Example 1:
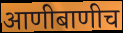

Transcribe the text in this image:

आणीबाणीच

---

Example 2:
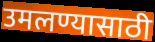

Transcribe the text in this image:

उमलण्यासाठी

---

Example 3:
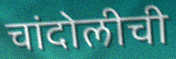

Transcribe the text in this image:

चांदोलीची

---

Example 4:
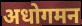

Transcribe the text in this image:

अधोगमन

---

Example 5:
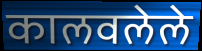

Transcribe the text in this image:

कालवलेले